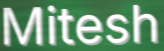
Mitesh